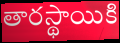
తారస్థాయికి